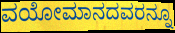
ವಯೋಮಾನದವರನ್ನೂ